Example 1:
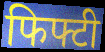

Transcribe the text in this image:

फिफ्टी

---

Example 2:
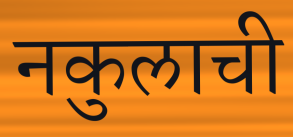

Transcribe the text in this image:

नकुलाची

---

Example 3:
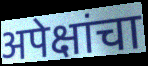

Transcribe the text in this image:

अपेक्षांचा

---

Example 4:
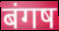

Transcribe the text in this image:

बंगष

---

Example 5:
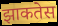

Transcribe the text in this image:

झाकतेस